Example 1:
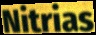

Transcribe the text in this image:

Nitrias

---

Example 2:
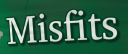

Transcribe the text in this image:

Misfits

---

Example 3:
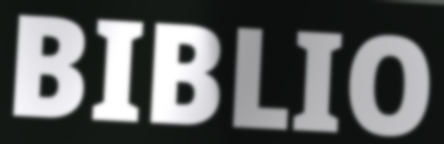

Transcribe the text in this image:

BIBLIO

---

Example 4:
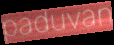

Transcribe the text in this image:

paduvan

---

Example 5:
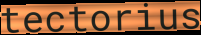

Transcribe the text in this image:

tectorius